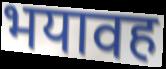
भयावह